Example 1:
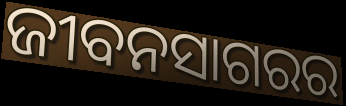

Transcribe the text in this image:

ଜୀବନସାଗରର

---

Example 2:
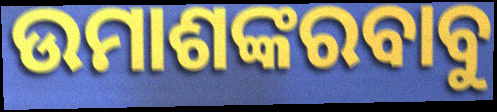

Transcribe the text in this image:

ଉମାଶଙ୍କରବାବୁ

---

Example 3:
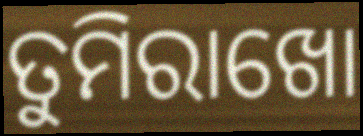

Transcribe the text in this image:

ତୁମିରାଖୋ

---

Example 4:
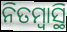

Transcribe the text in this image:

ନିତମ୍ବାସ୍ଥି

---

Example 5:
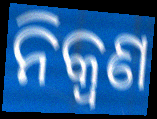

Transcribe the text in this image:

ନିକ୍ୱଣ